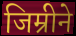
जिम्रीने